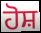
ਹੋਸ਼